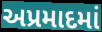
અપ્રમાદમાં